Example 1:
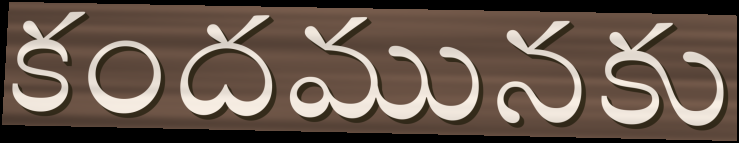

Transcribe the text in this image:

కందమునకు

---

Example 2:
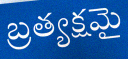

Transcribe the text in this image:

బ్రత్యక్షమై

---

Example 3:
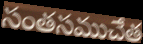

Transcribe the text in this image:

సంతసముచేత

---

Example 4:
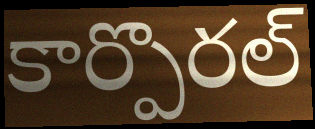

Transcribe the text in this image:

కార్పొరల్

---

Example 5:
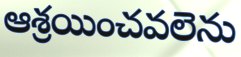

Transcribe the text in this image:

ఆశ్రయించవలెను